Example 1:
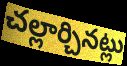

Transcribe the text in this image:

చల్లార్చినట్లు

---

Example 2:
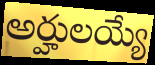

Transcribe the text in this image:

అర్హులయ్యే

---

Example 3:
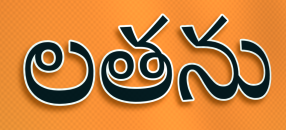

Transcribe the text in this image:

లతను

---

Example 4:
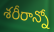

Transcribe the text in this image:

శరీరాన్నో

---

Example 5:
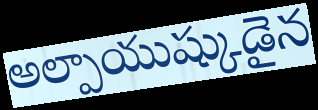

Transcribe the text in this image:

అల్పాయుష్కుడైన